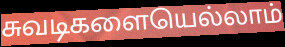
சுவடிகளையெல்லாம்